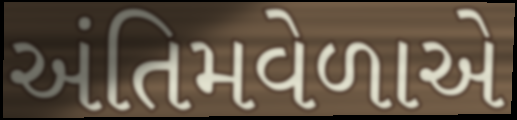
અંતિમવેળાએ